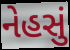
નેહસું